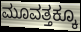
ಮೂವತ್ತಕ್ಕೂ